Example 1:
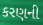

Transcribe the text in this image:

કરણની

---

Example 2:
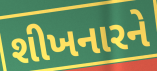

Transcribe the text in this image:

શીખનારને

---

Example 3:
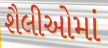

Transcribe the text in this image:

શૈલીઓમાં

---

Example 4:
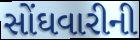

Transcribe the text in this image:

સોંઘવારીની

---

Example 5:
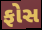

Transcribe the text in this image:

ફોસ